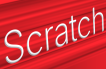
Scratch